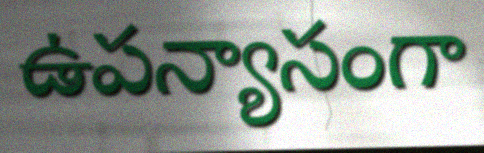
ఉపన్యాసంగా